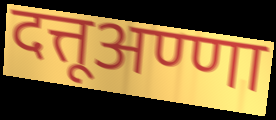
दत्तूअण्णा